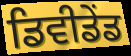
ਡਿਵੀਡੇਂਡ